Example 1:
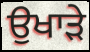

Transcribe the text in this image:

ਉਖਾੜੇ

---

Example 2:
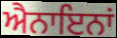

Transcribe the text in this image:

ਐਨਾਇਨਾਂ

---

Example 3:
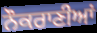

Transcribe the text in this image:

ਨੌਕਰਾਣੀਆਂ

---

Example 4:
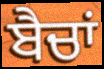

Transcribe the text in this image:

ਬੈਚਾਂ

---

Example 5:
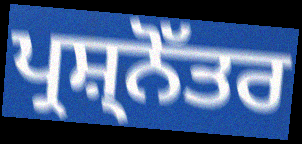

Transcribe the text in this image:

ਪ੍ਰਸ਼੍ਨੋੱਤਰ